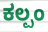
ಕಲ್ಪಂ